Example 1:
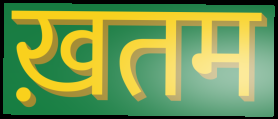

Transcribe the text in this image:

ख़तम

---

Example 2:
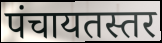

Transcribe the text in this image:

पंचायतस्तर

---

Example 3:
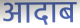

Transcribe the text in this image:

आदाब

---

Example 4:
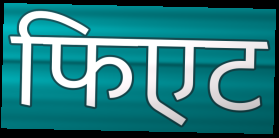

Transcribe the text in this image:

फिएट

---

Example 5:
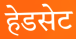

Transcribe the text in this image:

हेडसेट